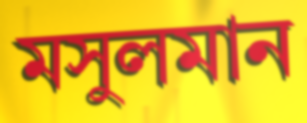
মসুলমান